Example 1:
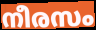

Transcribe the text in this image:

നീരസം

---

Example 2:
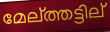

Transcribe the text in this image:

മേല്ത്തട്ടില്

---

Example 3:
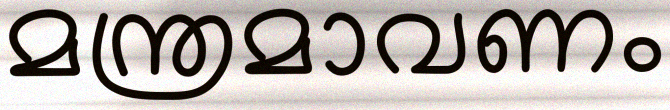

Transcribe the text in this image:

മന്ത്രമാവണം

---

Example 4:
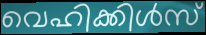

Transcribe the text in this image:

വെഹിക്കിൾസ്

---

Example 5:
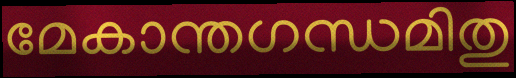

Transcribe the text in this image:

മേകാന്തഗന്ധമിതു